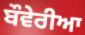
ਬੌਵੇਰੀਆ